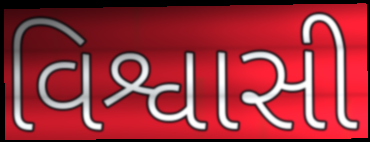
વિશ્વાસી